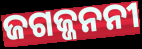
ଜଗଜ୍ଜନନୀ